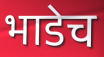
भाडेच